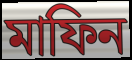
মাফিন